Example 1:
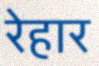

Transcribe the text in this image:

रेहार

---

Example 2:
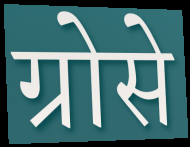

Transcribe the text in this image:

ग्रोसे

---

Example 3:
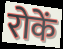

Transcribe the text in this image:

रोकें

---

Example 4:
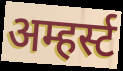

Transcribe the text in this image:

अम्हर्स्ट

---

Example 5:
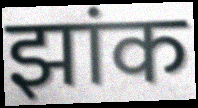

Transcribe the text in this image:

झांक